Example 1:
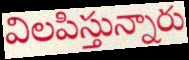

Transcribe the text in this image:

విలపిస్తున్నారు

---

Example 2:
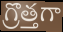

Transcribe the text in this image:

గ్రొత్తగా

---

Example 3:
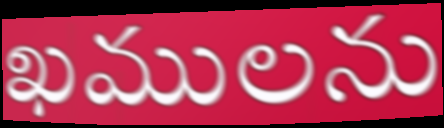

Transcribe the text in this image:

ఖములను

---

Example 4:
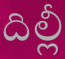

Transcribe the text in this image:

దిల్లీ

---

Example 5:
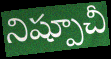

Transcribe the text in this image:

నిష్పూచీ